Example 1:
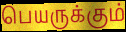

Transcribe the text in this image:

பெயருக்கும்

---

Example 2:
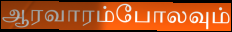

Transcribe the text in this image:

ஆரவாரம்போலவும்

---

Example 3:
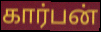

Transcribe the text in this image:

கார்பன்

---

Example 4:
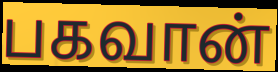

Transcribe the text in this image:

பகவான்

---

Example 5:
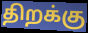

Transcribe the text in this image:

திறக்கு